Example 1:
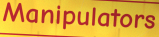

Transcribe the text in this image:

Manipulators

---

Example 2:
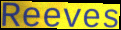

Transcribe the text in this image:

Reeves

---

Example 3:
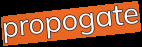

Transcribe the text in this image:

propogate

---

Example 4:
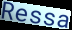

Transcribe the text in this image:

Ressa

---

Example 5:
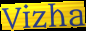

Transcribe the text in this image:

Vizha